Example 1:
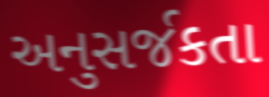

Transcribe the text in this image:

અનુસર્જકતા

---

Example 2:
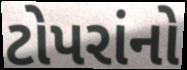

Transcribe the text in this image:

ટોપરાંનો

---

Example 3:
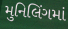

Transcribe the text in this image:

મુનિલિંગમાં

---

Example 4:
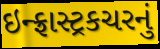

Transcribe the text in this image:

ઇન્ફ્રાસ્ટ્રકચરનું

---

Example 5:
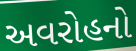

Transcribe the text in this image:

અવરોહનો